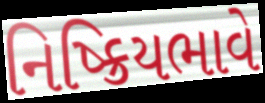
નિષ્ક્રિયભાવે